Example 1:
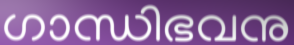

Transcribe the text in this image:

ഗാന്ധിഭവനു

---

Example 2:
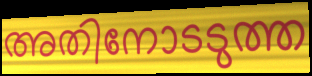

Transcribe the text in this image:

അതിനോടടുത്ത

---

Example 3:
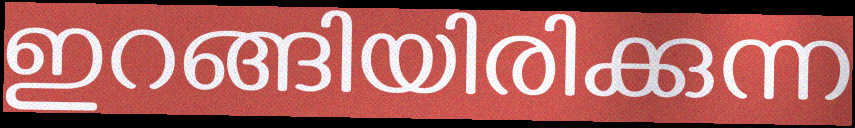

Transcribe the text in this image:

ഇറങ്ങിയിരിക്കുന്ന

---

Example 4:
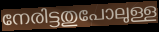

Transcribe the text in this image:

നേരിട്ടതുപോലുള്ള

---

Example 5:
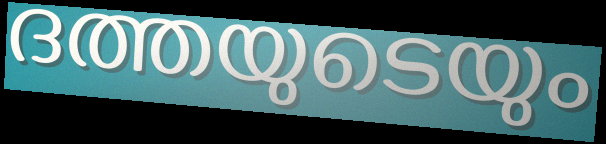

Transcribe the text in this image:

ദത്തയുടെയും